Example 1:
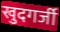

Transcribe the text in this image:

खुदगर्जी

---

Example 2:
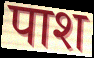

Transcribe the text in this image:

पाश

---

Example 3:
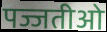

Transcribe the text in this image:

पज्जतीओ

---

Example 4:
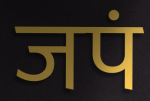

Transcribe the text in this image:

जपं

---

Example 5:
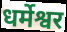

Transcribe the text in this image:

धर्मेश्वर